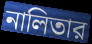
নালিতার